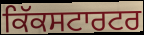
ਕਿੱਕਸਟਾਰਟਰ